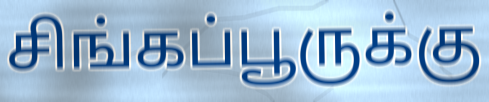
சிங்கப்பூருக்கு